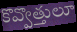
కొవ్వొత్తులూ